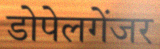
डोपेलगेंजर